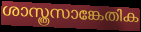
ശാസ്ത്രസാങ്കേതിക